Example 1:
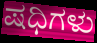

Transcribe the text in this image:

ಷಧಿಗಳು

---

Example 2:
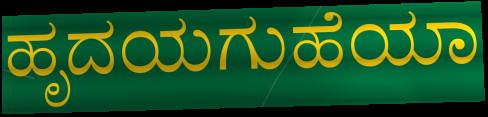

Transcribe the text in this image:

ಹೃದಯಗುಹೆಯಾ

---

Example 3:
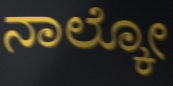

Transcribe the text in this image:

ನಾಲ್ಕೋ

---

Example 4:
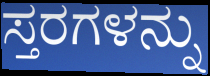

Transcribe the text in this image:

ಸ್ತರಗಳನ್ನು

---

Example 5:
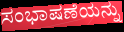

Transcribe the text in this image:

ಸಂಭಾಷಣೆಯನ್ನು